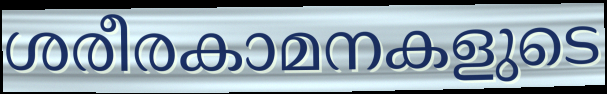
ശരീരകാമനകളുടെ